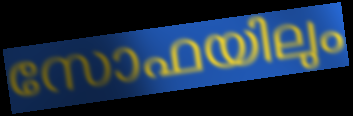
സോഫയിലും